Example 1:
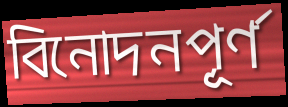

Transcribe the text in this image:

বিনোদনপূর্ণ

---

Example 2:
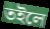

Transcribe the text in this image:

তইলে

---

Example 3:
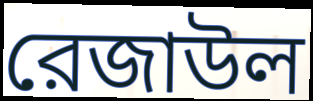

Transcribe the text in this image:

রেজাউল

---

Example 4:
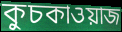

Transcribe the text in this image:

কুচকাওয়াজ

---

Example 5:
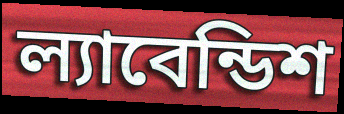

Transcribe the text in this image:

ল্যাবেন্ডিশ